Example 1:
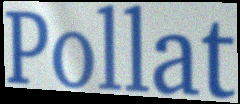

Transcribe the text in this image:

Pollat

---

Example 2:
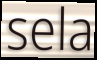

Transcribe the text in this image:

sela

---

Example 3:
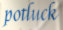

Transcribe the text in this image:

potluck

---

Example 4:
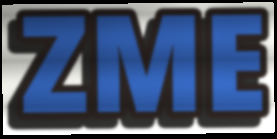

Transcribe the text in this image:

ZME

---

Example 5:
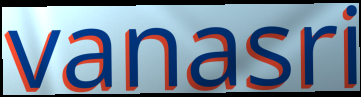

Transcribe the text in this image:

vanasri